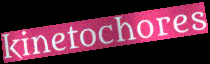
kinetochores